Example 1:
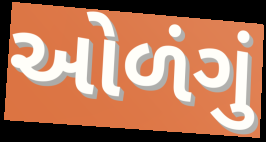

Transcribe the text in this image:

ઓળંગું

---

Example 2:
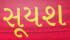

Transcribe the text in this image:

સૂયશ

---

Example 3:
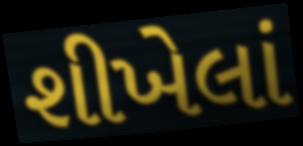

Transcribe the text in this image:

શીખેલાં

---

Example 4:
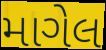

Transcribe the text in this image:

માગેલ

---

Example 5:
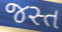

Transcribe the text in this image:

જસ્ત